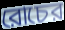
রোচের